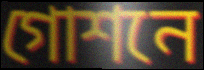
গোশনে